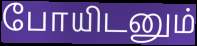
போயிடனும்